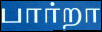
பார்றா